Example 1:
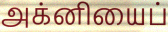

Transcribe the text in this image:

அக்னியைப்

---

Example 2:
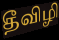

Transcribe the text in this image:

தீவிழி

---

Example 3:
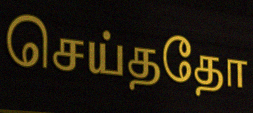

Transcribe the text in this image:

செய்ததோ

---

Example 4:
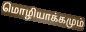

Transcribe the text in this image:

மொழியாக்கமும்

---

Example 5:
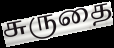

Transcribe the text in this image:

சுருதை